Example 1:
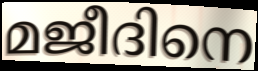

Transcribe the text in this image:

മജീദിനെ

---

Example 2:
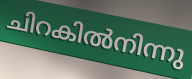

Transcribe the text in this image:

ചിറകിൽനിന്നു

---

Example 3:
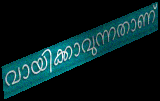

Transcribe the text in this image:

വായിക്കാവുന്നതാണ്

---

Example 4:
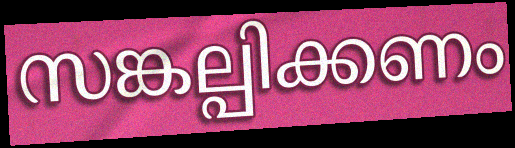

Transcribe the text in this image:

സങ്കല്പിക്കണം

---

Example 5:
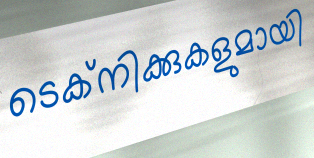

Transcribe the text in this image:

ടെക്നിക്കുകളുമായി